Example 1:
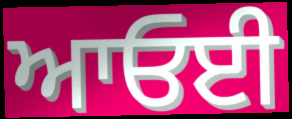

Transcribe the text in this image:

ਆਓਈ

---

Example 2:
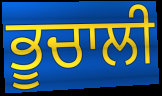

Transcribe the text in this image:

ਭੂਚਾਲੀ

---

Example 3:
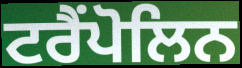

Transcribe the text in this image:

ਟਰੈਂਪੋਲਿਨ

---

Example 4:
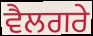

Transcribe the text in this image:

ਵੈਲਗਰੇ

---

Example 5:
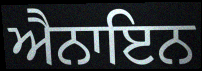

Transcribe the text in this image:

ਐਨਾਇਨ